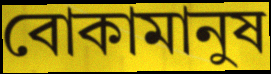
বোকামানুষ